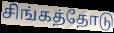
சிங்கத்தோடு